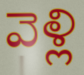
వెళ్లి